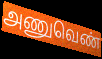
அணுவெண்